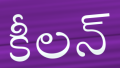
కీలన్